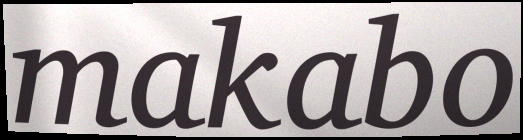
makabo